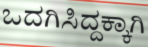
ಒದಗಿಸಿದ್ದಕ್ಕಾಗಿ